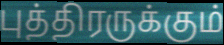
புத்திரருக்கும்